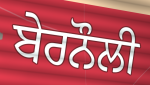
ਬੇਰਨੌਲੀ